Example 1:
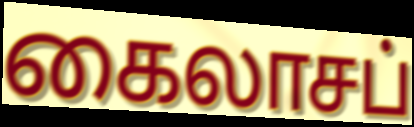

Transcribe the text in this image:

கைலாசப்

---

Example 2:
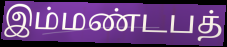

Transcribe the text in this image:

இம்மண்டபத்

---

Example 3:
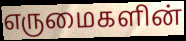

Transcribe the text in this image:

எருமைகளின்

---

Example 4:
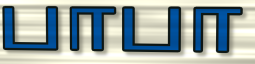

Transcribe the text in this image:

பாபா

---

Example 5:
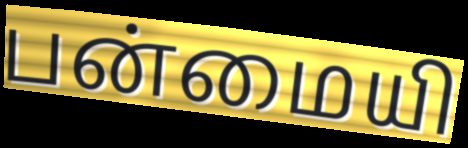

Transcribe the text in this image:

பன்மையி